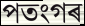
পতংগৰ